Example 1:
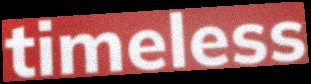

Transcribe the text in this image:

timeless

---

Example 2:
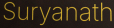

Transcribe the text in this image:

Suryanath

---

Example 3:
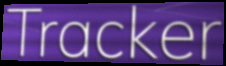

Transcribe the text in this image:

Tracker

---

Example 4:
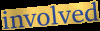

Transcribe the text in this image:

involved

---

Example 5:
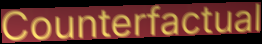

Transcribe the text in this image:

Counterfactual